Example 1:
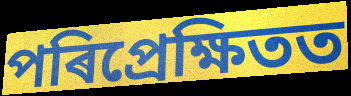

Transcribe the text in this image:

পৰিপ্ৰেক্ষিতত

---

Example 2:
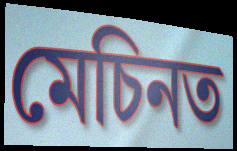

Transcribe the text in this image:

মেচিনত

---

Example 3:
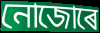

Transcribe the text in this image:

নোজোৰে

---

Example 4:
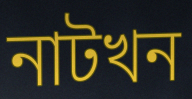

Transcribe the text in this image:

নাটখন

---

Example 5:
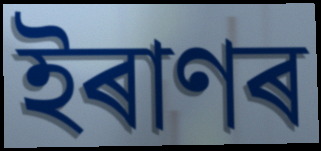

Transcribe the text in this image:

ইৰাণৰ